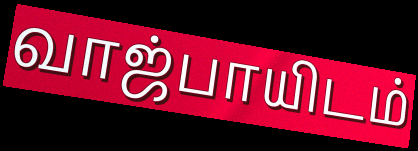
வாஜ்பாயிடம்